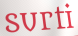
surti